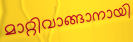
മാറ്റിവാങ്ങാനായി